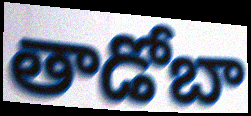
తాడోబా